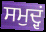
ਸਮੁਦ੍ਦਂ